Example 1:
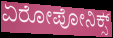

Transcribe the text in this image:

ಏರೋಪೋನಿಕ್ಸ್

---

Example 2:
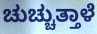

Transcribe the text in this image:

ಚುಚ್ಚುತ್ತಾಳೆ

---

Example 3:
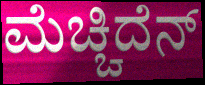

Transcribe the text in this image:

ಮೆಚ್ಚಿದೆನ್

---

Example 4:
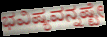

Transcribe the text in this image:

ಭವಿಷ್ಯವನ್ನಷ್ಟೇ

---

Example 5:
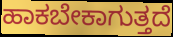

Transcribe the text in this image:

ಹಾಕಬೇಕಾಗುತ್ತದೆ